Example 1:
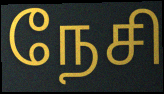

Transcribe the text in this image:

நேசி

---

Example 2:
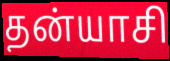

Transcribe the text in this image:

தன்யாசி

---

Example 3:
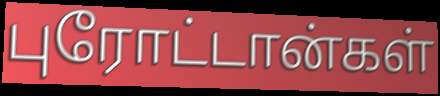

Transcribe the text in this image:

புரோட்டான்கள்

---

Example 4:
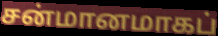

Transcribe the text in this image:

சன்மானமாகப்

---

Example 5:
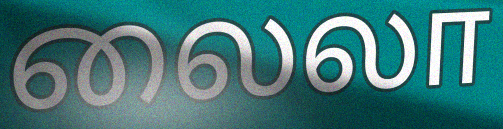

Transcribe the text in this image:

லைலா